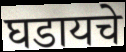
घडायचे